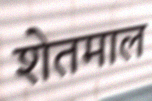
शेतमाल